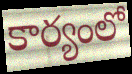
కార్యంలో